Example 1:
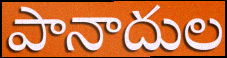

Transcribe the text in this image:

పానాదుల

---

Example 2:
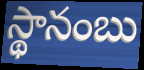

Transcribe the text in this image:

స్థానంబు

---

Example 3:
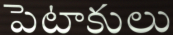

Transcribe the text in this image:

పెటాకులు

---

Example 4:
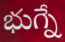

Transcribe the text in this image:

భుగ్నే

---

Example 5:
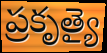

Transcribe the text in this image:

ప్రకృత్యై